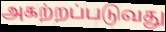
அகற்றப்படுவது